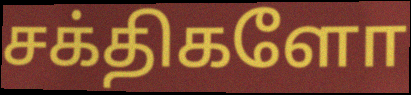
சக்திகளோ